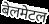
बेलमेटल